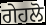
ਗੇਹਲੋ